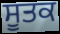
ਸੂਤਕ